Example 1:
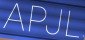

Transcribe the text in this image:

APJL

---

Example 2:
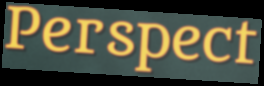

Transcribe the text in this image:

Perspect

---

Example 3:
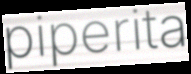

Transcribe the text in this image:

piperita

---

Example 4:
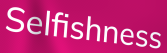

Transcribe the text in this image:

Selfishness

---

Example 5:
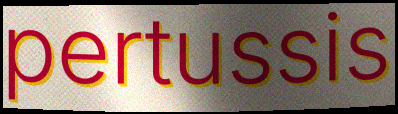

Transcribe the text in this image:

pertussis